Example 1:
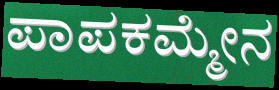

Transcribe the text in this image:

ಪಾಪಕಮ್ಮೇನ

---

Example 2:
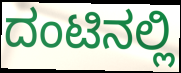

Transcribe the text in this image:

ದಂಟಿನಲ್ಲಿ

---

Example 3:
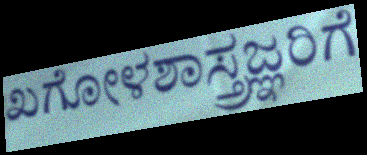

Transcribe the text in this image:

ಖಗೋಳಶಾಸ್ತ್ರಜ್ಞರಿಗೆ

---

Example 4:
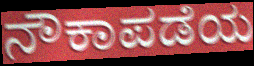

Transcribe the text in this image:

ನೌಕಾಪಡೆಯ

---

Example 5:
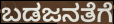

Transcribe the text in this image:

ಬಡಜನತೆಗೆ